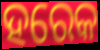
ହରେକ